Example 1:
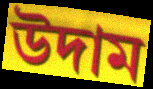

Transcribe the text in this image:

উদাম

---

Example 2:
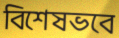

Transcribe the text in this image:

বিশেষভবে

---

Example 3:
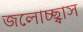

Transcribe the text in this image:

জলোচ্ছ্বাস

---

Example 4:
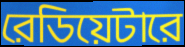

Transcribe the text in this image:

রেডিয়েটারে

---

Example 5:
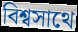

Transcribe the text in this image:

বিশ্বসাথে